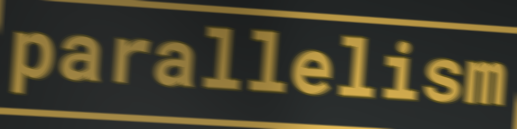
parallelism